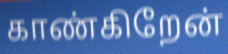
காண்கிறேன்